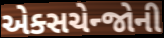
એક્સચેન્જોની